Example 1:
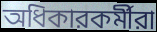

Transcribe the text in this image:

অধিকারকর্মীরা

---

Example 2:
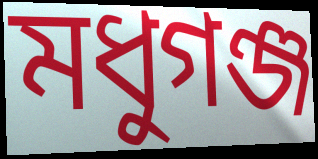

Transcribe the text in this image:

মধুগঞ্জ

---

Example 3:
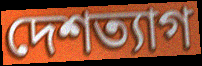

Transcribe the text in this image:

দেশত্যাগ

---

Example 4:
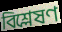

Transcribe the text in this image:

বিশ্লেষণ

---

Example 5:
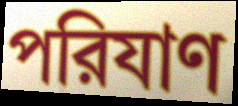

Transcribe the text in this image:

পরিযাণ